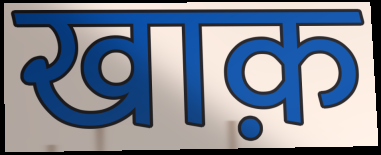
खाक़